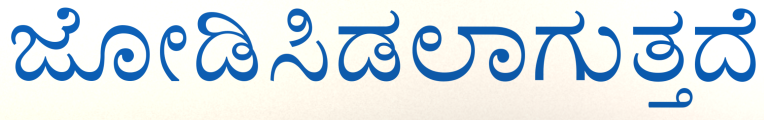
ಜೋಡಿಸಿಡಲಾಗುತ್ತದೆ